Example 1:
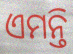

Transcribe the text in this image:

ଏମନ୍ତି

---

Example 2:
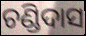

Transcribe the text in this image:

ଚଣ୍ଡିଦାସ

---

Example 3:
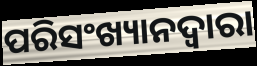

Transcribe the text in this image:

ପରିସଂଖ୍ୟାନଦ୍ଵାରା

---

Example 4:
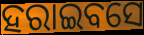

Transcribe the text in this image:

ହରାଇବସେ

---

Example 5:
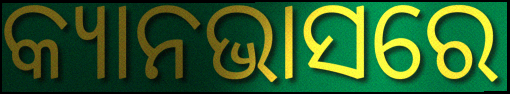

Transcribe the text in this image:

କ୍ୟାନଭାସରେ